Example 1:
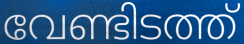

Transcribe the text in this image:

വേണ്ടിടത്ത്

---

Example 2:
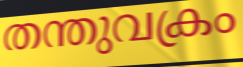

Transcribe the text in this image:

തന്തുവക്രം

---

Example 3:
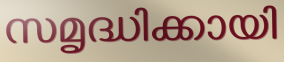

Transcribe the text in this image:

സമൃദ്ധിക്കായി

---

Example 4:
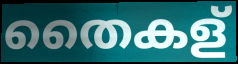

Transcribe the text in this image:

തൈകള്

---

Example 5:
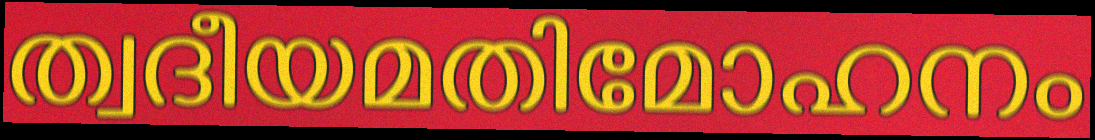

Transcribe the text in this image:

ത്വദീയമതിമോഹനം